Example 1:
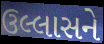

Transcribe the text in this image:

ઉલ્લાસને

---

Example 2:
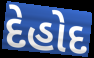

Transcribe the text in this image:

દેહોદ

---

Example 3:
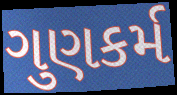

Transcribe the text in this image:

ગુણકર્મ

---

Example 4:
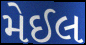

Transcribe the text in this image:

મેઈલ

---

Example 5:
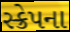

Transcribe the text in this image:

સ્ક્રેપના